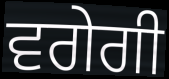
ਵਗੇਗੀ